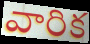
వారిక